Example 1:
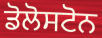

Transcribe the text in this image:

ਡੋਲੋਸਟੋਨ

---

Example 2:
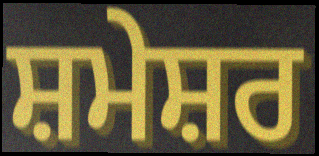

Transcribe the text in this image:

ਸ਼ਮੇਸ਼ਰ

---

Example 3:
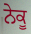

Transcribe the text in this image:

ਨੇਕੂ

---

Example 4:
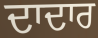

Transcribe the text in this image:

ਦਾਦਾਰ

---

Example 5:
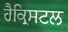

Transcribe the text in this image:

ਹੈਕ੍ਰਿਸਟਲ